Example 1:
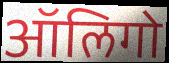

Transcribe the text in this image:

ऑलिगो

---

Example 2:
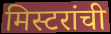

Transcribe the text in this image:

मिस्टरांची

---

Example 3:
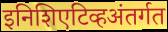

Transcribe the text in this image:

इनिशिएटिव्हअंतर्गत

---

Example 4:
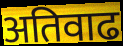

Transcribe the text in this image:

अतिवाढ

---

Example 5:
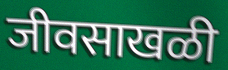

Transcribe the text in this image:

जीवसाखळी